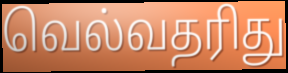
வெல்வதரிது